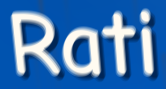
Rati